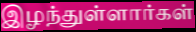
இழந்துள்ளார்கள்